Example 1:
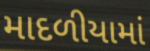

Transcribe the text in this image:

માદળીયામાં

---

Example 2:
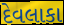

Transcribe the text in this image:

દેવલાકા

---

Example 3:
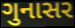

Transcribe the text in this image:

ગુનાસર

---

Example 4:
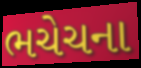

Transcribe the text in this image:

ભચેચના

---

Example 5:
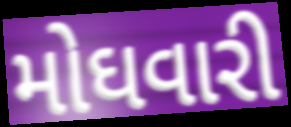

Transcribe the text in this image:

મોઘવારી